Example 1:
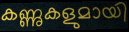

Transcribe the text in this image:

കണ്ണുകളുമായി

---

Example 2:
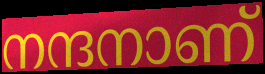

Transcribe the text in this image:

നന്ദനാണ്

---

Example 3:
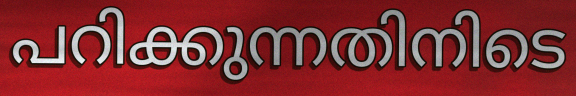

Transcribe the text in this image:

പറിക്കുന്നതിനിടെ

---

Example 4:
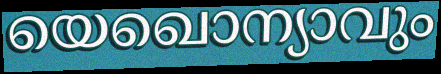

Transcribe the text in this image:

യെഖൊന്യാവും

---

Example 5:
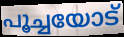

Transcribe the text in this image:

പൂച്ചയോട്